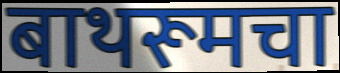
बाथरूमचा